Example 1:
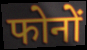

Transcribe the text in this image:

फोनों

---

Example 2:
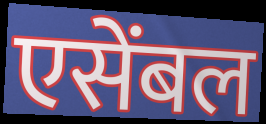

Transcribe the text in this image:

एसेंबल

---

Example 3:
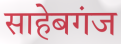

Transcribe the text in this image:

साहेबगंज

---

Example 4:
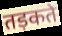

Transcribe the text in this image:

तड़कते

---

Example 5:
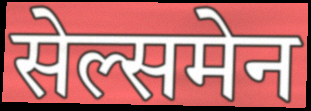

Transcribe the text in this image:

सेल्समेन